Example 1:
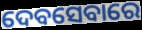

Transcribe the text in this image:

ଦେବସେବାରେ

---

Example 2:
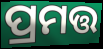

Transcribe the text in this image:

ପ୍ରମତ୍ତ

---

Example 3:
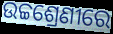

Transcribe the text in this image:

ଉଚ୍ଚଶ୍ରେଣୀରେ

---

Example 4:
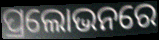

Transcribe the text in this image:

ପ୍ରଲୋଭନରେ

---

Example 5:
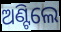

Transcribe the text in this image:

ଅଣ୍ଟିଲେ